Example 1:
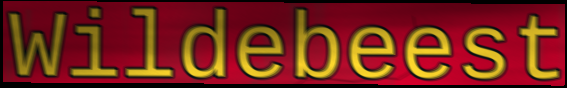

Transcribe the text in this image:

Wildebeest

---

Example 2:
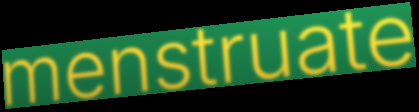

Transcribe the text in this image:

menstruate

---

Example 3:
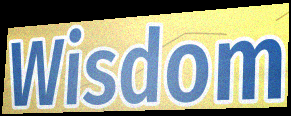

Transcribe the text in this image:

Wisdom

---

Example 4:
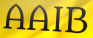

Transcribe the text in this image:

AAIB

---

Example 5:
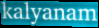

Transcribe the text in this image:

kalyanam